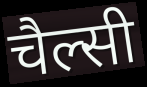
चैल्सी